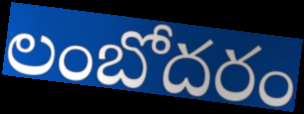
లంబోదరం